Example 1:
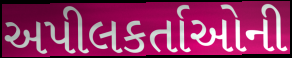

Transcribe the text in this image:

અપીલકર્તાઓની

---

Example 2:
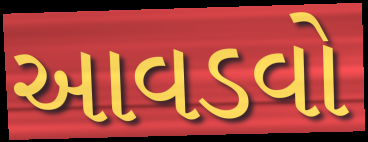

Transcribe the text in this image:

આવડવો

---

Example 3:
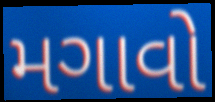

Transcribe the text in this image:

મગાવો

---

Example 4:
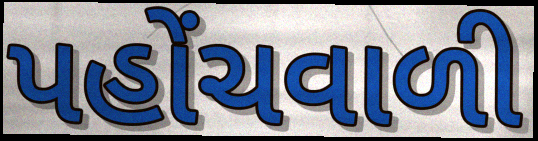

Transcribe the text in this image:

પહોંચવાળી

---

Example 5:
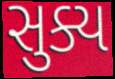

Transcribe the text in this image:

સુક્ય